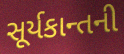
સૂર્યકાન્તની